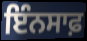
ਇੰਨਸਾਫ਼